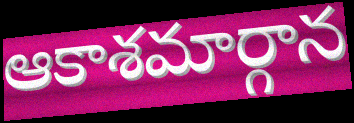
ఆకాశమార్గాన